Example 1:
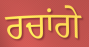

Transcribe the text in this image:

ਰਚਾਂਗੇ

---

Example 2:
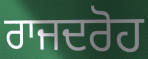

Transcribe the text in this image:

ਰਾਜਦਰੋਹ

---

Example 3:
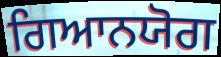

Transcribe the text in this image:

ਗਿਆਨਯੋਗ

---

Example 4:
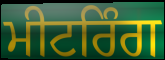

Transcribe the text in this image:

ਮੀਟਰਿੰਗ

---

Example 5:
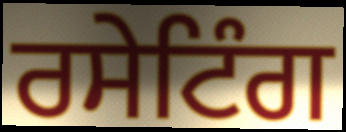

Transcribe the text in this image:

ਰਸੇਟਿੰਗ